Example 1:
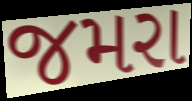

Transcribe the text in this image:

જમરા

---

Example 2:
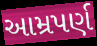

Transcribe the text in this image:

આમ્રપર્ણ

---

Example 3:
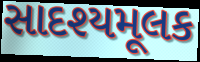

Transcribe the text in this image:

સાદશ્યમૂલક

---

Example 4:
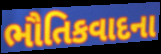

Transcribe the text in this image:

ભૌતિકવાદના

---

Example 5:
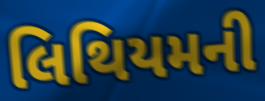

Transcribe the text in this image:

લિથિયમની